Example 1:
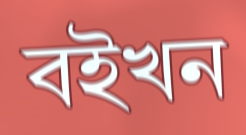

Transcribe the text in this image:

বইখন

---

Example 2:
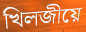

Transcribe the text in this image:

খিলজীয়ে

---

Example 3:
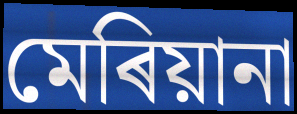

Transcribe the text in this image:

মেৰিয়ানা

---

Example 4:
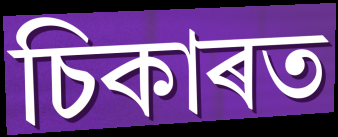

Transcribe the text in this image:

চিকাৰত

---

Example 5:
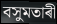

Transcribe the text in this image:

বসুমতাৰী